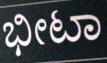
ಭೀಟಾ